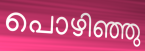
പൊഴിഞ്ഞു